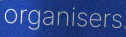
organisers